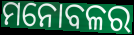
ମନୋବଳର